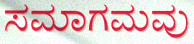
ಸಮಾಗಮವು